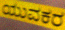
ಯುವಕರ